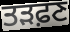
ਤੜਫ਼ਣ